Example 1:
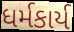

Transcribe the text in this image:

ધર્મકાર્ય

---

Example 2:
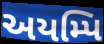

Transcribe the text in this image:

અયમ્પિ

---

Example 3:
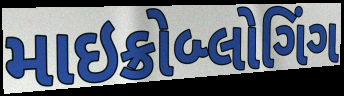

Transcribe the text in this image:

માઇક્રોબ્લોગિંગ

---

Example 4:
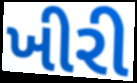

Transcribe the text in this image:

ખીરી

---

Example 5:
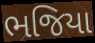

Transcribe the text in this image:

ભજિયા